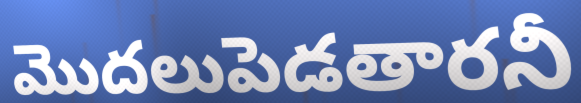
మొదలుపెడతారనీ